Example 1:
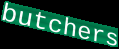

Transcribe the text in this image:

butchers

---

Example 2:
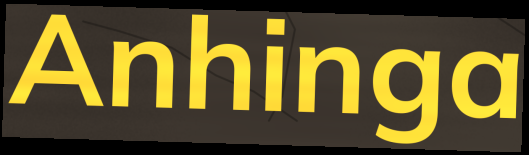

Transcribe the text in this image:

Anhinga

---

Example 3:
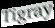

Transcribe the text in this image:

Tigray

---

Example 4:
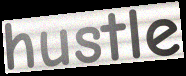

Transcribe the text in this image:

hustle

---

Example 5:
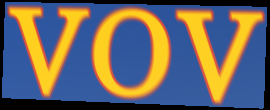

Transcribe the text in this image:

vov